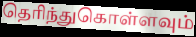
தெரிந்துகொள்ளவும்